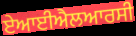
ਏਆਈਐਲਆਰਸੀ